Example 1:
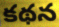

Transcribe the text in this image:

కథన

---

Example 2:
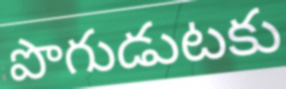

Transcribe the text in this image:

పొగుడుటకు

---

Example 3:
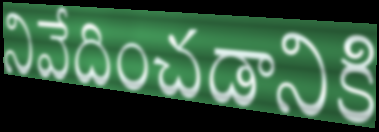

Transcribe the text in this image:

నివేదించడానికి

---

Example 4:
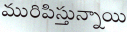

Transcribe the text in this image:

మురిపిస్తున్నాయి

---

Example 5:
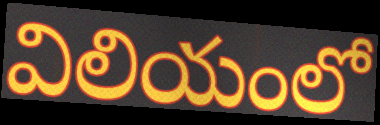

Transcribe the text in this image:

విలియంలో